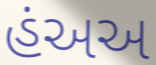
હંઅઅ